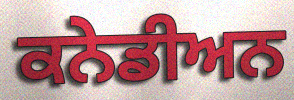
ਕਨੇਡੀਅਨ